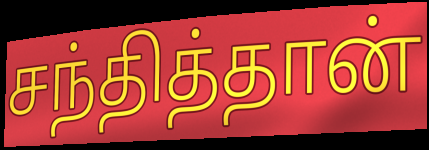
சந்தித்தான்